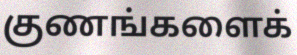
குணங்களைக்